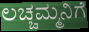
ಲಚ್ಚಮ್ಮನಿಗೆ